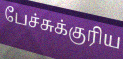
பேச்சுக்குரிய